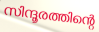
സിന്ദൂരത്തിന്റെ